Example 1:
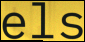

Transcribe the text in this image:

els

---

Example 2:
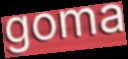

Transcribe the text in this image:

goma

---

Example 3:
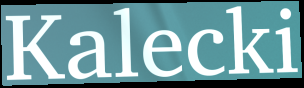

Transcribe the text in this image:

Kalecki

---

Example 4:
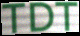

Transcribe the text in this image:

TDT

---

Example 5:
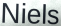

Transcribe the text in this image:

Niels